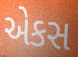
એકસ